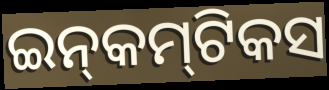
ଇନ୍‍କମ୍‍ଟିକସ